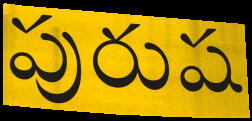
పురుష